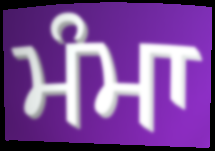
ਮੰਮਾ